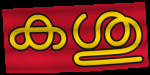
കശു